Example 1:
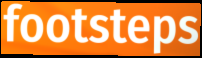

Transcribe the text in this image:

footsteps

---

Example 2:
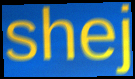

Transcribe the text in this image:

shej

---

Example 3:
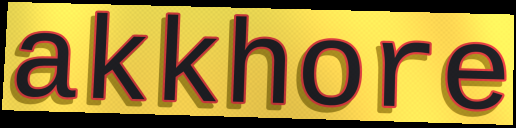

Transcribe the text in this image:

akkhore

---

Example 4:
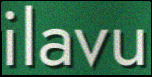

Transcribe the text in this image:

ilavu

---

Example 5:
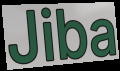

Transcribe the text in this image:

Jiba